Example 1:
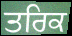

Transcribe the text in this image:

ਤਰਿਕ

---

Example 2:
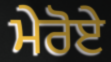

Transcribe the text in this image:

ਮੇਰੋਏ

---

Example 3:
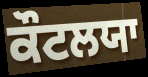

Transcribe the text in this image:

ਕੌਟਲਯਾ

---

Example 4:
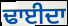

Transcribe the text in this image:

ਢਾਈਦਾ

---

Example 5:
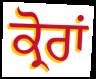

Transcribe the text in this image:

ਕ੍ਰੋਰਾਂ